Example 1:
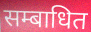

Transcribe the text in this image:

सम्बाधित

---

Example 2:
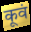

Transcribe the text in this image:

कूवं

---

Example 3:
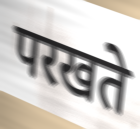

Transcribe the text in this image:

परखते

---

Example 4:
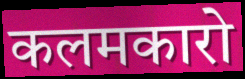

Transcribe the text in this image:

कलमकारो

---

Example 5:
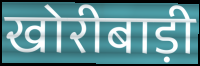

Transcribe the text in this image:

खोरीबाड़ी